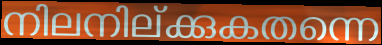
നിലനില്ക്കുകതന്നെ